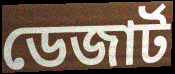
ডেজাৰ্ট